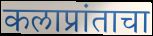
कलाप्रांताचा